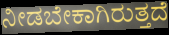
ನೀಡಬೇಕಾಗಿರುತ್ತದೆ